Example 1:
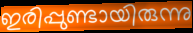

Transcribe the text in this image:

ഇരിപ്പുണ്ടായിരുന്നു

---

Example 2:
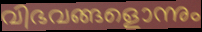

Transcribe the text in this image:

വിഭവങ്ങളൊന്നും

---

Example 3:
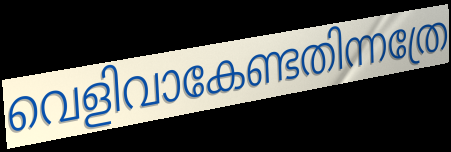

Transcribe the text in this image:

വെളിവാകേണ്ടതിന്നത്രേ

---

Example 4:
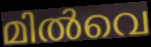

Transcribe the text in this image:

മിൽവെ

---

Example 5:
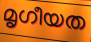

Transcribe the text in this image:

മൃഗീയത